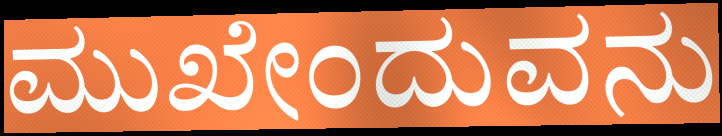
ಮುಖೇಂದುವನು